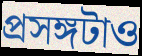
প্রসঙ্গটাও